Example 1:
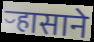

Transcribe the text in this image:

ऱ्हासाने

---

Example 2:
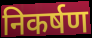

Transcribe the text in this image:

निकर्षण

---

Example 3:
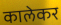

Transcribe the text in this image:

कालेकर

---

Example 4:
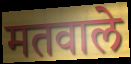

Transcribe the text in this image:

मतवाले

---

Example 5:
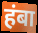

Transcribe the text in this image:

हंबा